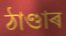
ঠাণ্ডাৰ